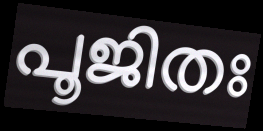
പൂജിതഃ